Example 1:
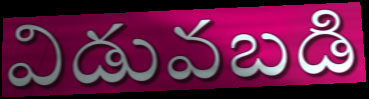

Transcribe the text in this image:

విడువబడి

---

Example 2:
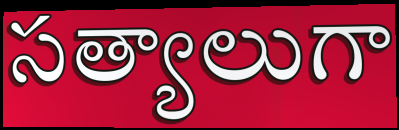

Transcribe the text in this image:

సత్యాలుగా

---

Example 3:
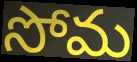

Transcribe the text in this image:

సోమ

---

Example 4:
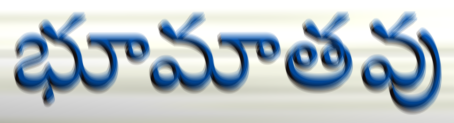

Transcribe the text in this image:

భూమాతవు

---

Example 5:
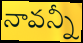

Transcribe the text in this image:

నావన్నీ